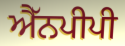
ਐੱਨਪੀਪੀ